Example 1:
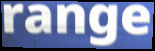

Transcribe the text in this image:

range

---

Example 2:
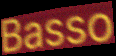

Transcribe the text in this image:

Basso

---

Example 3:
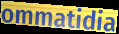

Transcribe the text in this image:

ommatidia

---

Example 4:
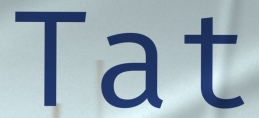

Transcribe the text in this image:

Tat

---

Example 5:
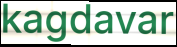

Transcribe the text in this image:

kagdavar